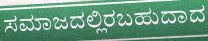
ಸಮಾಜದಲ್ಲಿರಬಹುದಾದ